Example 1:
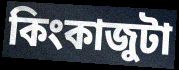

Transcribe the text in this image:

কিংকাজুটা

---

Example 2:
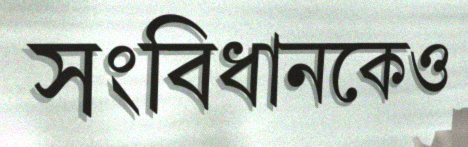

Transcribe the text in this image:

সংবিধানকেও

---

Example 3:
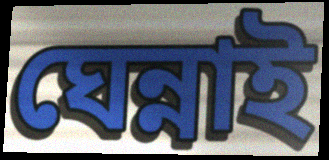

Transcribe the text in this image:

ঘেন্নাই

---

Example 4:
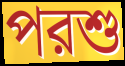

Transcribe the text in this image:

পরশু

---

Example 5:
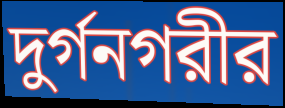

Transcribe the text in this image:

দুর্গনগরীর